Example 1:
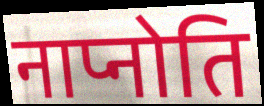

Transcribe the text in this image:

नाप्नोति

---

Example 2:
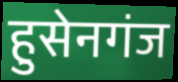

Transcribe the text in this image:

हुसेनगंज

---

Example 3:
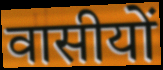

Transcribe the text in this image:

वासीयों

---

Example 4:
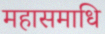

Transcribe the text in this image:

महासमाधि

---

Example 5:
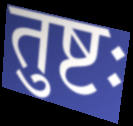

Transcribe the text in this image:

तुष्टः